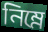
নিম্নে